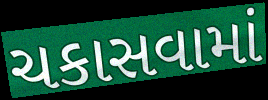
ચકાસવામાં